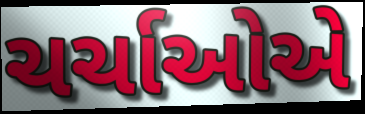
ચર્ચાઓએ